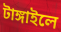
টাঙ্গাইলে